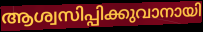
ആശ്വസിപ്പിക്കുവാനായി